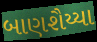
બાણશૈય્યા